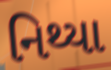
નિથ્યા